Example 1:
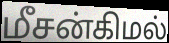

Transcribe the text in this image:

மீசன்கிமல்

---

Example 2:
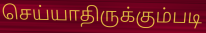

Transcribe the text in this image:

செய்யாதிருக்கும்படி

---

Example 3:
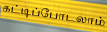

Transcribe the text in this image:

கட்டிப்போடலாம்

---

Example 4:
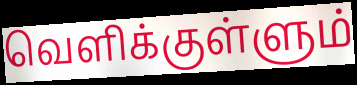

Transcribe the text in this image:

வெளிக்குள்ளும்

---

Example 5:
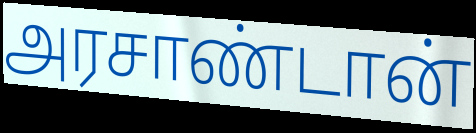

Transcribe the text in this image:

அரசாண்டான்